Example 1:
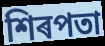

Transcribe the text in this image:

শিৰপতা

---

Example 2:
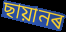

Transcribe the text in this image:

ছায়ানৰ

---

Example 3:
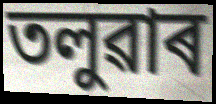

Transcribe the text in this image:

তলুৱাৰ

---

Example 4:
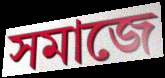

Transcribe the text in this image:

সমাজে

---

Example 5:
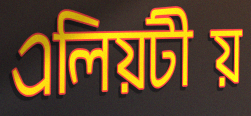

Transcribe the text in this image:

এলিয়টীয়